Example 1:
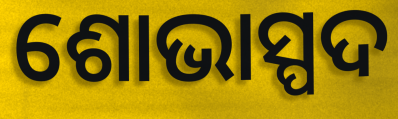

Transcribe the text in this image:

ଶୋଭାସ୍ପଦ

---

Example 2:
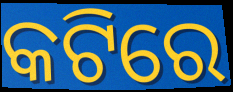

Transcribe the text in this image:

କଟିରେ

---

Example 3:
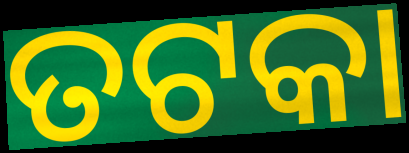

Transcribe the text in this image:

ତଟକା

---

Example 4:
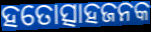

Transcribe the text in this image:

ହତୋତ୍ସାହଜନକ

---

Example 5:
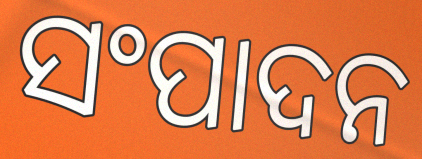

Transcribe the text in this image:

ସଂପାଦନ